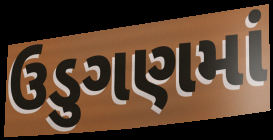
ઉડુગણમાં